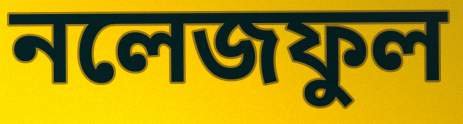
নলেজফুল